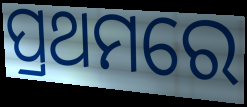
ପ୍ରଥମରେ